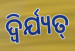
ଦ୍ୱିର୍ଯ୍ୟତ୍